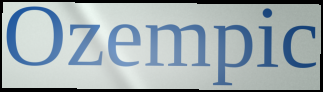
Ozempic